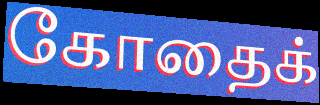
கோதைக்